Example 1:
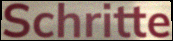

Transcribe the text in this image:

Schritte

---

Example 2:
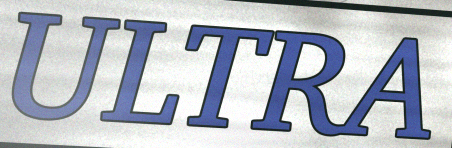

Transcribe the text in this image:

ULTRA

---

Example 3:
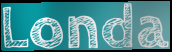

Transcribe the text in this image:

Londa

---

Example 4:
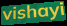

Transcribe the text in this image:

vishayi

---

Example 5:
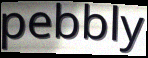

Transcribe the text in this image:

pebbly